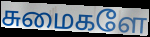
சுமைகளே